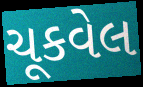
ચૂકવેલ